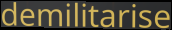
demilitarise